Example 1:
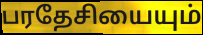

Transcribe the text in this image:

பரதேசியையும்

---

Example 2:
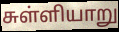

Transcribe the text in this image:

சுள்ளியாறு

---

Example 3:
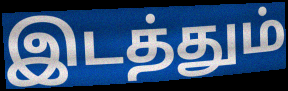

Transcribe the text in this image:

இடத்தும்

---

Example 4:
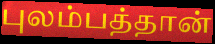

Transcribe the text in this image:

புலம்பத்தான்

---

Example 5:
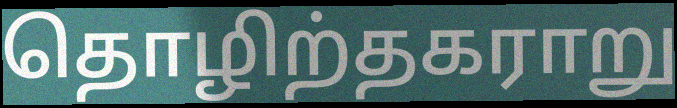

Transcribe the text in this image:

தொழிற்தகராறு